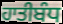
ਹਾਤੀਬੰਧ